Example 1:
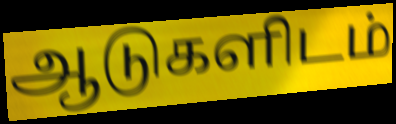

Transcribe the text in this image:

ஆடுகளிடம்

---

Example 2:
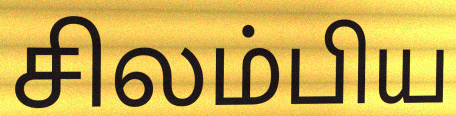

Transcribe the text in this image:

சிலம்பிய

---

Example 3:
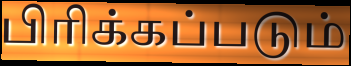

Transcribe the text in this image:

பிரிக்கப்படும்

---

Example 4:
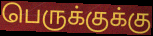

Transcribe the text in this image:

பெருக்குக்கு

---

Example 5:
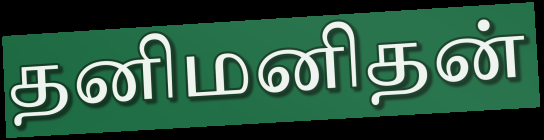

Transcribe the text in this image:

தனிமனிதன்